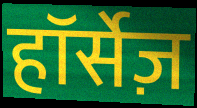
हॉर्सेज़